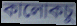
কালোকচু